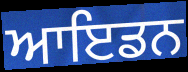
ਆਇਡਨ